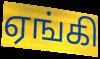
ஏங்கி